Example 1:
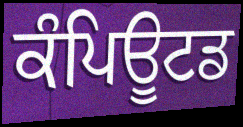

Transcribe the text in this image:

ਕੰਪਿਊਟਡ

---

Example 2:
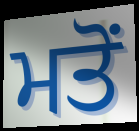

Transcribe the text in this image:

ਮਤੋਂ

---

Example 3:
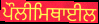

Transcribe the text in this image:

ਪੌਲੀਮਿਥਾਈਲ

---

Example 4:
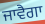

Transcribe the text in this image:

ਜਾਵੈਗਾ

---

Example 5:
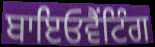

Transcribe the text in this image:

ਬਾਇਓਵੈਂਟਿੰਗ